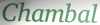
Chambal